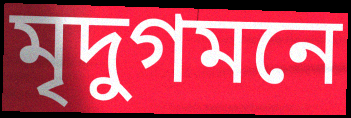
মৃদুগমনে